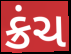
ક્રંચ